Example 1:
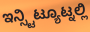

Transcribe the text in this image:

ಇನ್ಸ್ಟಿಟ್ಯೂಟ್ನಲ್ಲಿ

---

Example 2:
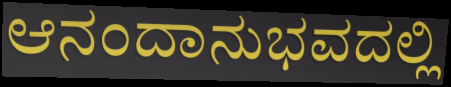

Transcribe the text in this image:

ಆನಂದಾನುಭವದಲ್ಲಿ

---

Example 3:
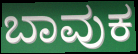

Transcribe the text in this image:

ಬಾವುಕ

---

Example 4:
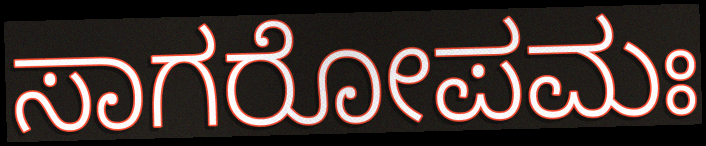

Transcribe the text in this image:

ಸಾಗರೋಪಮಃ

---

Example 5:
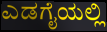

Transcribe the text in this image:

ಎಡಗೈಯಲ್ಲಿ